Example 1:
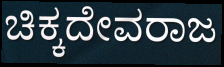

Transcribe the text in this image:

ಚಿಕ್ಕದೇವರಾಜ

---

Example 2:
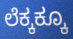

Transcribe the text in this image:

ಲೆಕ್ಕಕ್ಕೂ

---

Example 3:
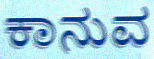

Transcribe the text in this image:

ಕಾನುವ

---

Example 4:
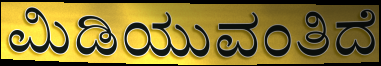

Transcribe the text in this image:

ಮಿಡಿಯುವಂತಿದೆ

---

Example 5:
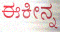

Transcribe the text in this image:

ಈಕೀನ್ನ